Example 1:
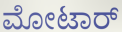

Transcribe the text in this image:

ಮೋಟಾರ್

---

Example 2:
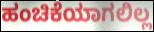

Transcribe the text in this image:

ಹಂಚಿಕೆಯಾಗಲಿಲ್ಲ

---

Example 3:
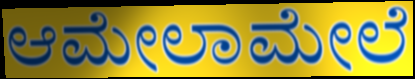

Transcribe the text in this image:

ಆಮೇಲಾಮೇಲೆ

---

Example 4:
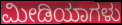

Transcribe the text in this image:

ಮೀಡಿಯಾಗಳು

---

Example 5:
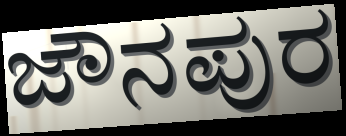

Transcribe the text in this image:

ಜೌನಪುರ